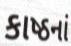
કાષ્ઠનાં